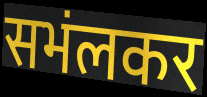
सभंलकर